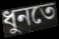
ধুনতে